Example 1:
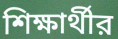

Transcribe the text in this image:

শিক্ষার্থীর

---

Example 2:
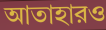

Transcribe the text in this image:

আতাহারও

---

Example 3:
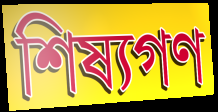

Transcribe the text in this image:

শিষ্যগণ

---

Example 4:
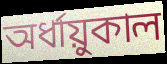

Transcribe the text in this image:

অর্ধায়ুকাল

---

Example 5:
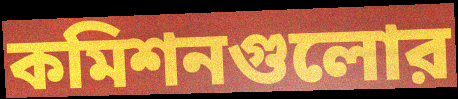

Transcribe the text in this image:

কমিশনগুলোর